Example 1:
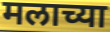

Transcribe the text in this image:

मलाच्या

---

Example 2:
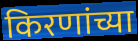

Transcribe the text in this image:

किरणांच्या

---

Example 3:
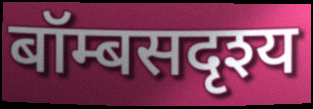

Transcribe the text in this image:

बॉम्बसदृश्य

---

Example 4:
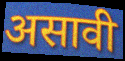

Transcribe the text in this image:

असावी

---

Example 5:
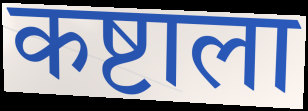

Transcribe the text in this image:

कष्टाला